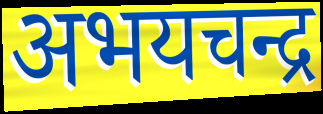
अभयचन्द्र